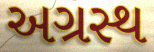
અગ્રસ્થ